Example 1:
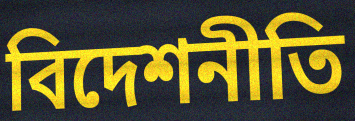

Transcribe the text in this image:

বিদেশনীতি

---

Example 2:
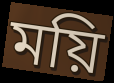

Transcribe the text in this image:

ময়ি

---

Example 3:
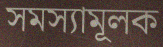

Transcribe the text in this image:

সমস্যামূলক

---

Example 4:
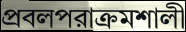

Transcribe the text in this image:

প্রবলপরাক্রমশালী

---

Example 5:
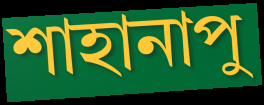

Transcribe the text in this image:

শাহানাপু